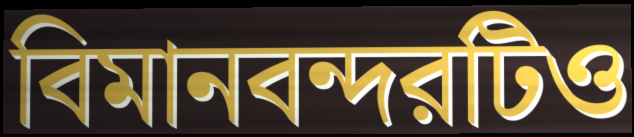
বিমানবন্দরটিও